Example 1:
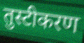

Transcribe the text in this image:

तुस्टीकरण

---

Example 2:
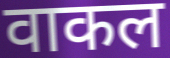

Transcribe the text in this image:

वाकल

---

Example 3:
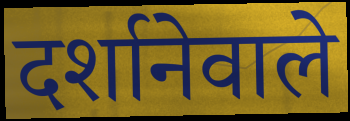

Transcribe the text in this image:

दर्शानेवाले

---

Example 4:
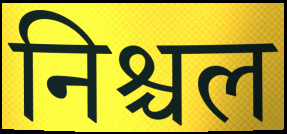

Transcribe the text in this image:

निश्चल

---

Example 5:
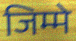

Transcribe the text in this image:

जिम्मे